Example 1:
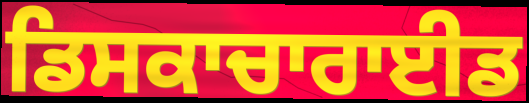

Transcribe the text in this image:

ਡਿਸਕਾਚਾਰਾਈਡ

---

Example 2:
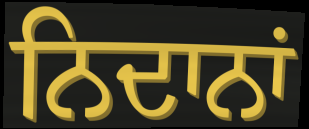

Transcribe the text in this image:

ਨਿਦਾਨਾਂ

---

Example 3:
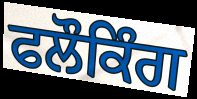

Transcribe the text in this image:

ਫਲੌਕਿੰਗ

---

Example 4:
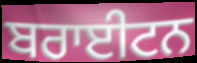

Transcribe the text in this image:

ਬਰਾਈਟਨ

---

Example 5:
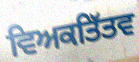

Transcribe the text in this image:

ਵਿਅਕਤਿੱਤਵ